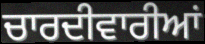
ਚਾਰਦੀਵਾਰੀਆਂ